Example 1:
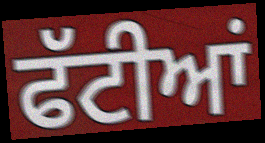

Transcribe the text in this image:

ਫੱਟੀਆਂ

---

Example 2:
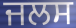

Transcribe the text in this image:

ਜਲਸ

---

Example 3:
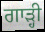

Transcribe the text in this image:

ਗਾੜ੍ਹੀ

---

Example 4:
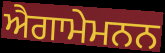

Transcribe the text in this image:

ਐਗਾਮੇਮਨਨ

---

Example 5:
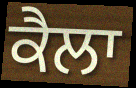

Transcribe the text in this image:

ਕੈਲਾ